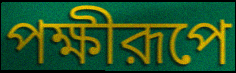
পক্ষীরূপে